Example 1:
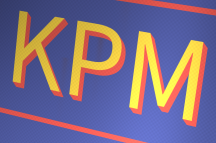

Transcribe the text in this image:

KPM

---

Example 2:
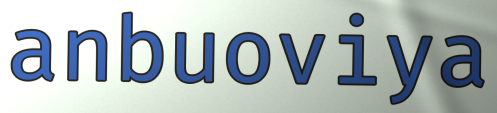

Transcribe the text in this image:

anbuoviya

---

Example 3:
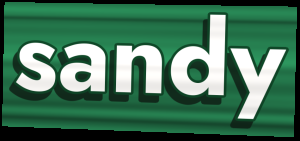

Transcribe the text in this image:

sandy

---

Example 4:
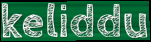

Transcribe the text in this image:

keliddu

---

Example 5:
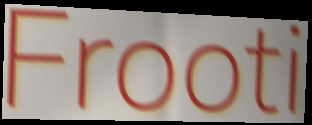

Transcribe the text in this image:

Frooti